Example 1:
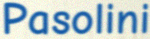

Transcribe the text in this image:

Pasolini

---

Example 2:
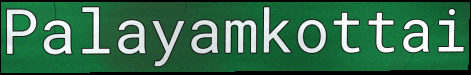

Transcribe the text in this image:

Palayamkottai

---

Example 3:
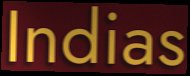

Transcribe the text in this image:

Indias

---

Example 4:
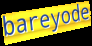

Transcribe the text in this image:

bareyode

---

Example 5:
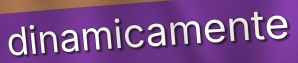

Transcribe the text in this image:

dinamicamente